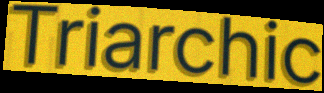
Triarchic